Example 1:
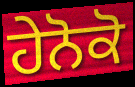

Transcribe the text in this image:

ਹੇਨੋਕੋ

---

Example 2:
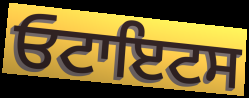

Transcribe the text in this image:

ਓਟਾਇਟਸ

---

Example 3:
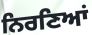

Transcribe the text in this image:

ਨਿਰਣਿਆਂ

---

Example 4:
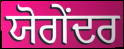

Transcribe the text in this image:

ਯੋਗੇਂਦਰ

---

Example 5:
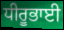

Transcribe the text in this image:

ਧੀਰੂਭਾਈ